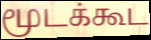
மூடக்கூட